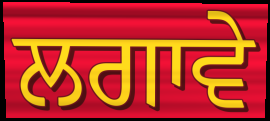
ਲਗਾਵੇ